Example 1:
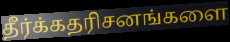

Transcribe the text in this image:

தீர்க்கதரிசனங்களை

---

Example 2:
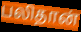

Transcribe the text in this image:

பலிதான்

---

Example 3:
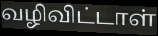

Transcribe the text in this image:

வழிவிட்டாள்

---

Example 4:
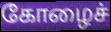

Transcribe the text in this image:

கோழைச்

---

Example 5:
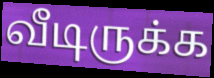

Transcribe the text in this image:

வீடிருக்க